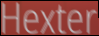
Hexter